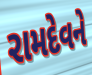
રામદેવને